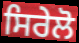
ਸਿਰੇਲੋ